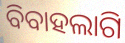
ବିବାହଲାଗି